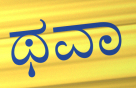
ಥವಾ